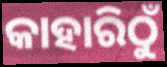
କାହାରିଠୁଁ